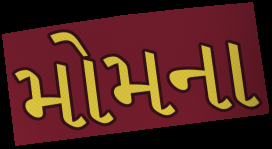
મોમના